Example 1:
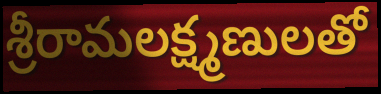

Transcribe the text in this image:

శ్రీరామలక్ష్మణులతో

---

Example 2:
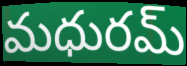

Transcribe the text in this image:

మధురమ్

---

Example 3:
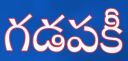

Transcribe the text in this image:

గడపకీ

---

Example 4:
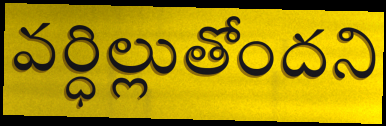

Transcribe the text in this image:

వర్ధిల్లుతోందని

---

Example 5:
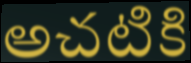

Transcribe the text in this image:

అచటికి